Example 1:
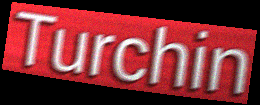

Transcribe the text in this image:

Turchin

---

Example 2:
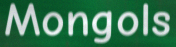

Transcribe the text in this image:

Mongols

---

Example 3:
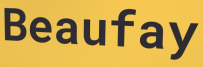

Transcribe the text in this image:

Beaufay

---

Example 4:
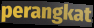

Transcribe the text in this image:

perangkat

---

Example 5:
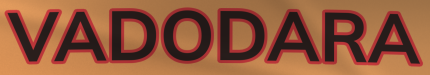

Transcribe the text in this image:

VADODARA